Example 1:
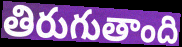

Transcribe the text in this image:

తిరుగుతాంది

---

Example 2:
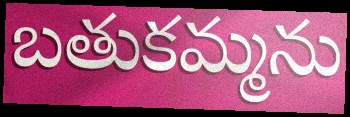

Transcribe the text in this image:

బతుకమ్మను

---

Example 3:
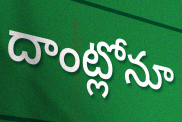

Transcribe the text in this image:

దాంట్లోనూ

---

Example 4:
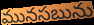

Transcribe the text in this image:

మునసబును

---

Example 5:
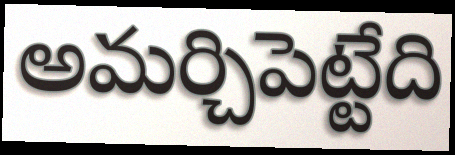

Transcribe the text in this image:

అమర్చిపెట్టేది